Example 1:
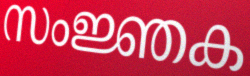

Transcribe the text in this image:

സംജ്ഞക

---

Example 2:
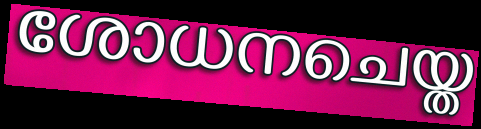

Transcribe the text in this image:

ശോധനചെയ്ത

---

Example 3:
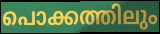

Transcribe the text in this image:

പൊക്കത്തിലും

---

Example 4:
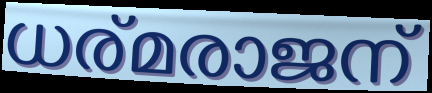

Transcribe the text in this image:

ധര്മരാജന്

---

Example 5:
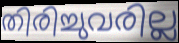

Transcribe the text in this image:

തിരിച്ചുവരില്ല